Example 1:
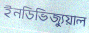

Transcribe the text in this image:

ইনডিভিজ্যুয়াল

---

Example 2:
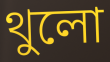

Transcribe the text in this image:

থুলো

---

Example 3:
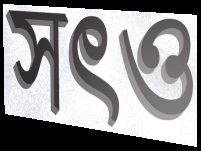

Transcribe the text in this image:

সৎও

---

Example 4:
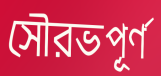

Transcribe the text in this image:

সৌরভপূর্ণ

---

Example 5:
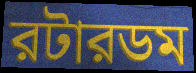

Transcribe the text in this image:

রটারডম